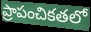
ప్రాపంచికతలో